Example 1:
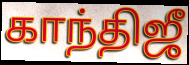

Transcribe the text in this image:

காந்திஜீ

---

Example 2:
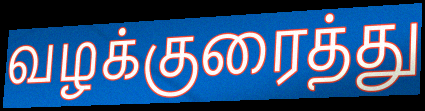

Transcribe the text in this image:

வழக்குரைத்து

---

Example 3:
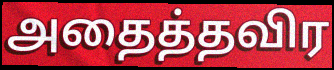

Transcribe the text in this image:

அதைத்தவிர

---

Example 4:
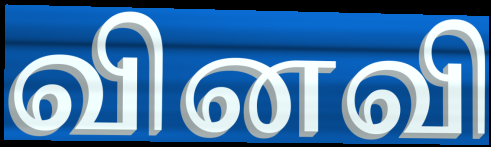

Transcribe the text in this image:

வினவி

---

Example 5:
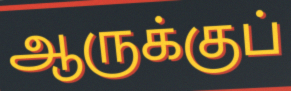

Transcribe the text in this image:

ஆருக்குப்